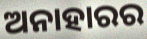
ଅନାହାରର